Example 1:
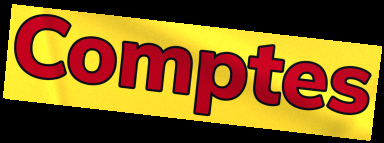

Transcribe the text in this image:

Comptes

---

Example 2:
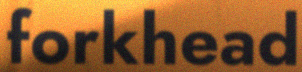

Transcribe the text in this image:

forkhead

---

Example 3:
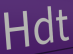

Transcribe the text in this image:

Hdt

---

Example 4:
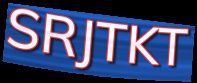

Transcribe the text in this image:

SRJTKT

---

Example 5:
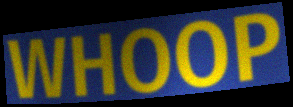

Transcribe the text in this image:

WHOOP